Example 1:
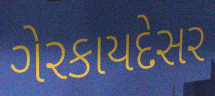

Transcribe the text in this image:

ગેરકાયદેસર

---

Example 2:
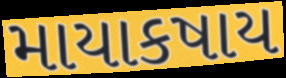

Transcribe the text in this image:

માયાકષાય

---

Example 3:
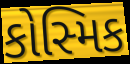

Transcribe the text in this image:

કોસ્મિક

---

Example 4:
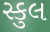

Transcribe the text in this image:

સ્કુલ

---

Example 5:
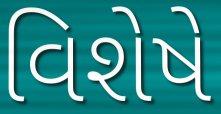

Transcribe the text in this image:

વિશેષે